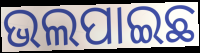
ଭଲପାଇଛ